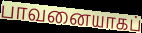
பாவனையாகப்